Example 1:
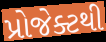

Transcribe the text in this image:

પ્રોજેક્ટથી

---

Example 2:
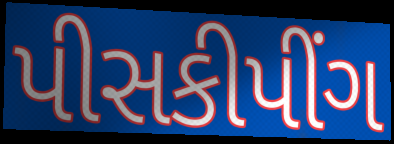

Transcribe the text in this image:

પીસકીપીંગ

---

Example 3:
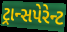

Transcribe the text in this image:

ટ્રાન્સપેરેન્ટ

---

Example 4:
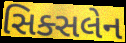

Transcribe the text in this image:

સિક્સલેન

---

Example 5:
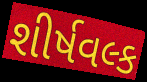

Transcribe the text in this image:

શીર્ષવલ્ક